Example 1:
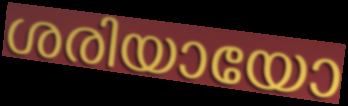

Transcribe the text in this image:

ശരിയായോ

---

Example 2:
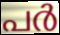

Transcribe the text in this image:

പർ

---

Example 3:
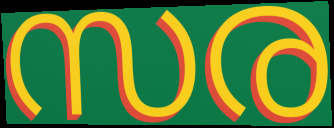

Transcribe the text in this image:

സര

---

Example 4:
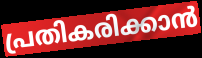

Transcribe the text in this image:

പ്രതികരിക്കാൻ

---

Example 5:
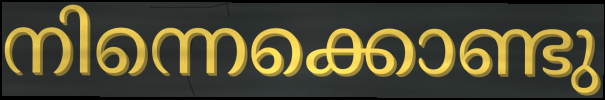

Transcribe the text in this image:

നിന്നെക്കൊണ്ടു